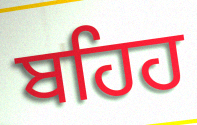
ਬਹਿਹ